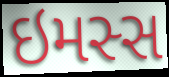
ઇમસ્સ